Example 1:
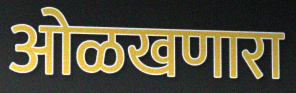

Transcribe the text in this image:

ओळखणारा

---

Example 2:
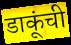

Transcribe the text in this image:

डाकूंची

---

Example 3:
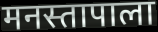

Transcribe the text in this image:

मनस्तापाला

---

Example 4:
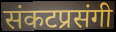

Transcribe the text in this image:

संकटप्रसंगी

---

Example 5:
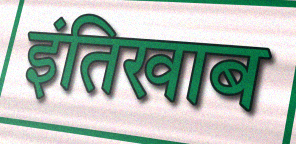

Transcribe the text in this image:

इंतिखाब